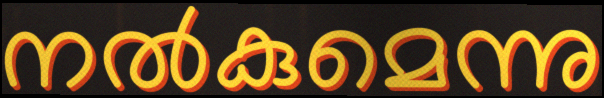
നൽകുമെന്നു